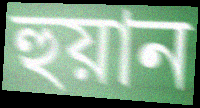
হুয়ান